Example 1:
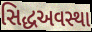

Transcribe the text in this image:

સિદ્ધઅવસ્થા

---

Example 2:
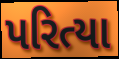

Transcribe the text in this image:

પરિત્યા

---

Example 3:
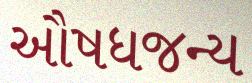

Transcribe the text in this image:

ઔષધજન્ય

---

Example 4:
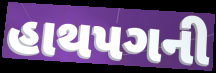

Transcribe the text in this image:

હાથપગની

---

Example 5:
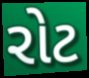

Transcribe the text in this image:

રોટ